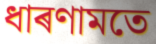
ধাৰণামতে